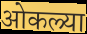
ओकल्या